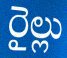
రైల్లు